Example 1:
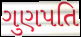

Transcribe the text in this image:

ગુણપતિ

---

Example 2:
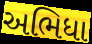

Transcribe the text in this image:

અભિધા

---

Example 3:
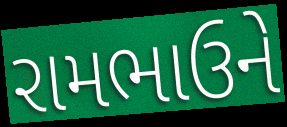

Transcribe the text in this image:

રામભાઉને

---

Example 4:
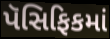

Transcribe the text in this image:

પૅસિફિકમાં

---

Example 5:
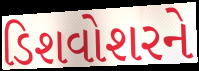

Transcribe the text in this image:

ડિશવોશરને